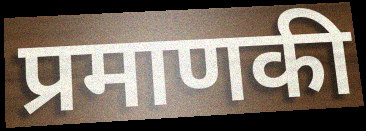
प्रमाणकी